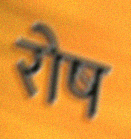
रोष